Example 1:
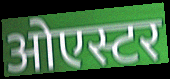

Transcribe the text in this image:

ओएस्टर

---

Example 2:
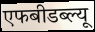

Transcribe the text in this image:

एफबीडब्ल्यू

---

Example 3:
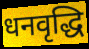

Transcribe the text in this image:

धनवृद्धि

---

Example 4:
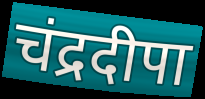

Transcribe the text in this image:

चंद्रदीपा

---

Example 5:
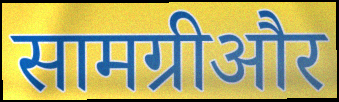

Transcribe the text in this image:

सामग्रीऔर